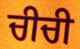
ਚੀਚੀ